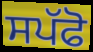
ਸਪੱਫੋ